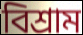
বিশ্রাম